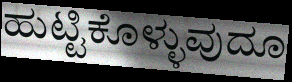
ಹುಟ್ಟಿಕೊಳ್ಳುವುದೂ